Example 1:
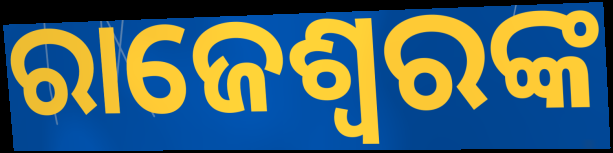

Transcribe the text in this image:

ରାଜେଶ୍ୱରଙ୍କ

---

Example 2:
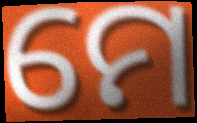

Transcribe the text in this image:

ମେ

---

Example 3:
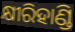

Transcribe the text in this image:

କ୍ଷୀରିହାଣ୍ଡି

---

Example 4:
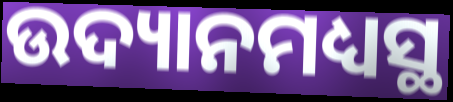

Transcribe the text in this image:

ଉଦ୍ୟାନମଧ୍ୟସ୍ଥ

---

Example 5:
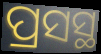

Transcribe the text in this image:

ପ୍ରସସ୍ଥ